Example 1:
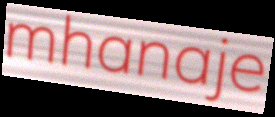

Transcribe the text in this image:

mhanaje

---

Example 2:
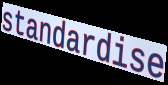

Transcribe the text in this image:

standardise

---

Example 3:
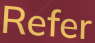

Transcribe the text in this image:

Refer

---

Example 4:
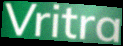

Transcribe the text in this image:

Vritra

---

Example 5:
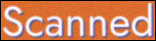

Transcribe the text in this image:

Scanned